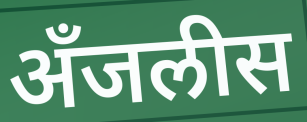
अँजलीस